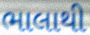
ભાલાથી